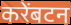
करेंबटन